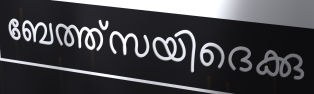
ബേത്ത്സയിദെക്കു